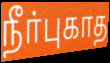
நீர்புகாத